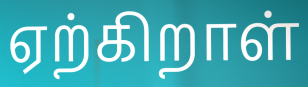
ஏற்கிறாள்